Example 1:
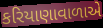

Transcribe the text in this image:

કરિયાણાવાળાએ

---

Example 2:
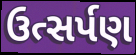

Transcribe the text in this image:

ઉત્સર્પણ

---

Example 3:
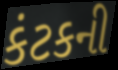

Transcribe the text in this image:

કંટકની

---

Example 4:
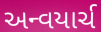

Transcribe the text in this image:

અન્વયાર્ચ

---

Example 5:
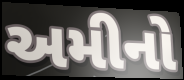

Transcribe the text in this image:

અમીનો